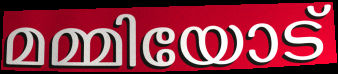
മമ്മിയോട്